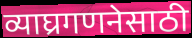
व्याघ्रगणनेसाठी